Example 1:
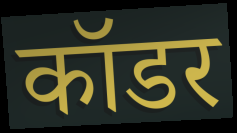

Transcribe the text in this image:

कॉडर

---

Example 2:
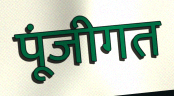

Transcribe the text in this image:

पूंजीगत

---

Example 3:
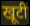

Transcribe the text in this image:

खूटी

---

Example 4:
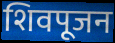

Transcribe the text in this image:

शिवपूजन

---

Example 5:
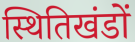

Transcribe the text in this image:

स्थितिखंडों